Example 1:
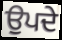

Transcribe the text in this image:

ਉਪਦੇ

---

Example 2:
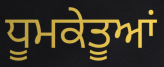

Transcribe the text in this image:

ਧੂਮਕੇਤੂਆਂ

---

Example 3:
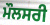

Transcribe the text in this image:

ਮੌਲਸਰੀ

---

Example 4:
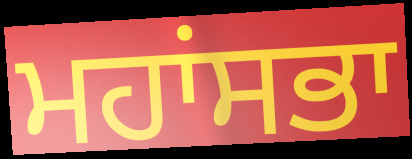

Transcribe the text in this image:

ਮਹਾਂਸਭਾ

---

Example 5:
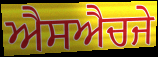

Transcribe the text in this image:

ਐਸਐਚਜੇ